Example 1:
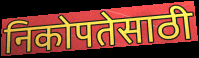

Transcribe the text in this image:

निकोपतेसाठी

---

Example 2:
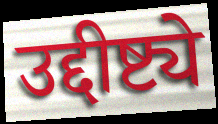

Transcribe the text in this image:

उद्दीष्ट्ये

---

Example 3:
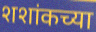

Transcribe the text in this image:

शशांकच्या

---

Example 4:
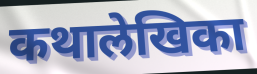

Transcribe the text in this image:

कथालेखिका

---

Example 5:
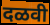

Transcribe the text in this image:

दळवी